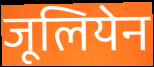
जूलियेन